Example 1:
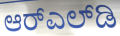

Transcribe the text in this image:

ಆರ್‌ಎಲ್‌ಡಿ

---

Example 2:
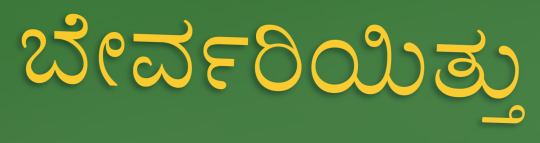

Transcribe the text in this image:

ಬೇರ್ವರಿಯಿತ್ತು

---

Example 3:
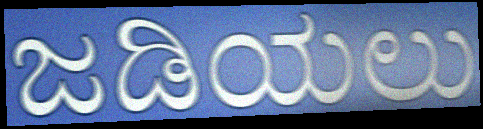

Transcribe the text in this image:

ಜಡಿಯಲು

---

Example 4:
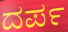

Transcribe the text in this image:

ದರ್ಪ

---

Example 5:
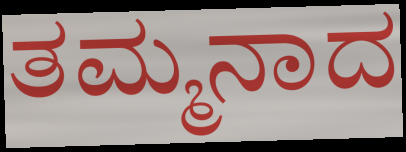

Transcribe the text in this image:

ತಮ್ಮನಾದ